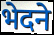
भेदने